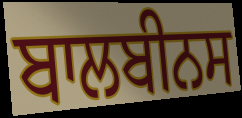
ਬਾਲਬੀਨਸ